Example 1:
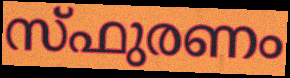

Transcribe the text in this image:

സ്ഫുരണം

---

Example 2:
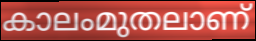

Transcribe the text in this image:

കാലംമുതലാണ്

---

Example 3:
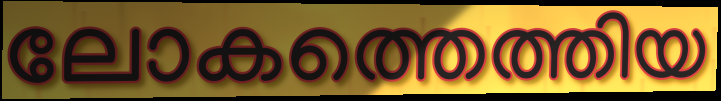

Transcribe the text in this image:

ലോകത്തെത്തിയ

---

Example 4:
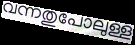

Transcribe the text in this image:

വന്നതുപോലുള്ള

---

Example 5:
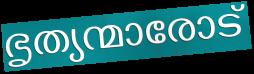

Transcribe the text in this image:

ഭൃത്യന്മാരോട്